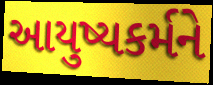
આયુષ્યકર્મને